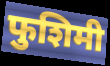
फुशिमी